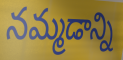
నమ్మడాన్ని